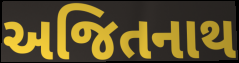
અજિતનાથ